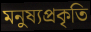
মনুষ্যপ্রকৃতি